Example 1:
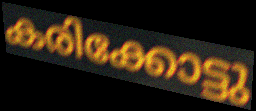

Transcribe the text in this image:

കരിക്കോട്ടു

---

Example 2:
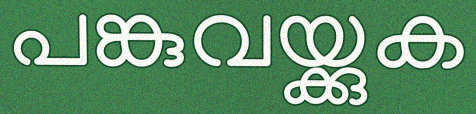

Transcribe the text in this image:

പങ്കുവയ്ക്കുക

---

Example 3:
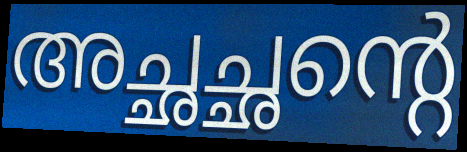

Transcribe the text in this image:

അച്ഛച്ഛന്റെ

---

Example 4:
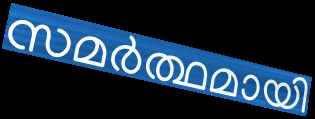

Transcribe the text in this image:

സമർത്ഥമായി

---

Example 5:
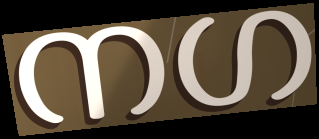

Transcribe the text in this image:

നഗ